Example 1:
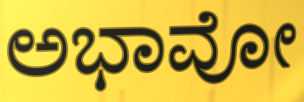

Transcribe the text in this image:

ಅಭಾವೋ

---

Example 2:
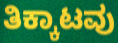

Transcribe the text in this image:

ತಿಕ್ಕಾಟವು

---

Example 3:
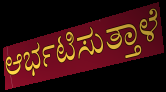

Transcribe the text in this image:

ಆರ್ಭಟಿಸುತ್ತಾಳೆ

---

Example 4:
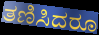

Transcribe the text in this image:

ತಣಿಸಿದರೂ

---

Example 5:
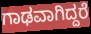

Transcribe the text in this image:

ಗಾಢವಾಗಿದ್ದರೆ